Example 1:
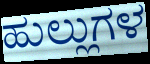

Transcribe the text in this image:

ಹುಲ್ಲುಗಳ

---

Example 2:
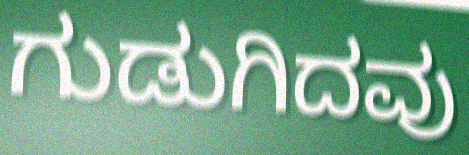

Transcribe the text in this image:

ಗುಡುಗಿದವು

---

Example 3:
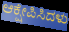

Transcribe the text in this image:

ಆಕ್ಷೇಪಿಸಿದಳು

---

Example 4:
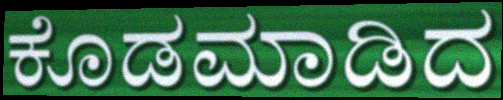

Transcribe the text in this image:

ಕೊಡಮಾಡಿದ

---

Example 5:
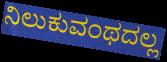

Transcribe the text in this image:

ನಿಲುಕುವಂಥದಲ್ಲ